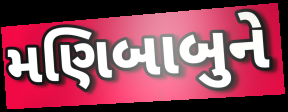
મણિબાબુને